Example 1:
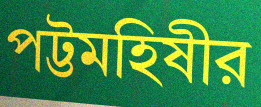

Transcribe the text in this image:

পট্টমহিষীর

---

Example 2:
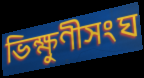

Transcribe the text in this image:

ভিক্ষুণীসংঘ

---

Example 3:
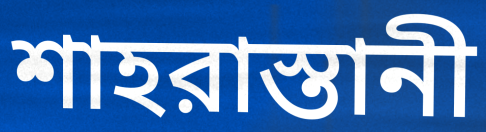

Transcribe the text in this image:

শাহরাস্তানী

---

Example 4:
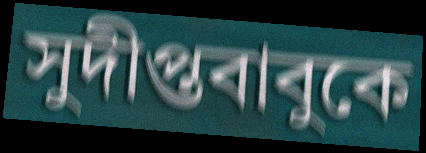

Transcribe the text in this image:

সুদীপ্তবাবুকে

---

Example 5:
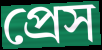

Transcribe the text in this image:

প্রেস